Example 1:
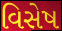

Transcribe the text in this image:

વિસેષ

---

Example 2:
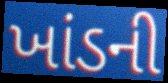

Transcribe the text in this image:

ખાંડની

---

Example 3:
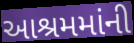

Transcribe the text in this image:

આશ્રમમાંની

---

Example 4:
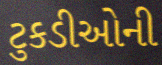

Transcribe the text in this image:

ટુકડીઓની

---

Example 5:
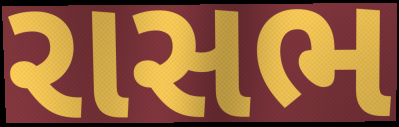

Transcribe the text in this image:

રાસભ